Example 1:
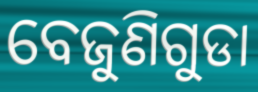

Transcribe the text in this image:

ବେଜୁଣିଗୁଡା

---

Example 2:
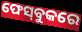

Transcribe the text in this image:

ଫେସ୍‌ବୁକରେ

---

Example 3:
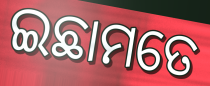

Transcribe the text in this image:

ଇଛାମତେ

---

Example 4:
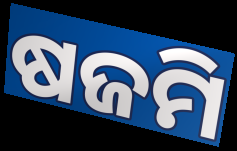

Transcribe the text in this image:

ଷଜମି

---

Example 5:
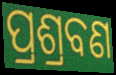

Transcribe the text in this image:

ପ୍ରଶ୍ରବଣ